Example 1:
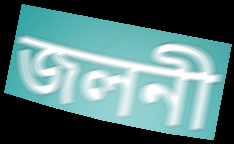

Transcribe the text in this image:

জলনী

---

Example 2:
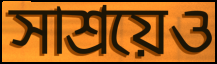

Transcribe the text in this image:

সাশ্রয়েও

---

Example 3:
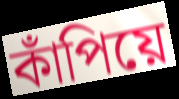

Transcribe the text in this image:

কাঁপিয়ে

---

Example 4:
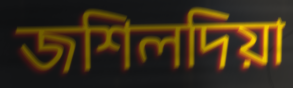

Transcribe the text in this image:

জশিলদিয়া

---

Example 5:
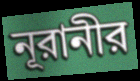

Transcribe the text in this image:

নূরানীর